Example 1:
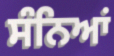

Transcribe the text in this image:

ਸੰਨਿਆਂ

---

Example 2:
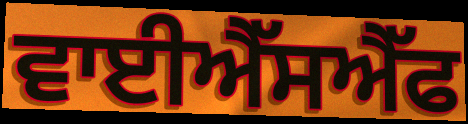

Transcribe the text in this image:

ਵਾਈਐੱਸਐੱਫ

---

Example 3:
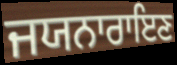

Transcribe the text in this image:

ਜਯਨਾਰਾਇਣ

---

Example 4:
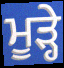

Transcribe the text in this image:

ਮੂੜ੍ਹੇ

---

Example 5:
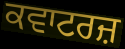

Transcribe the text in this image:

ਕਵਾਟਰਜ਼